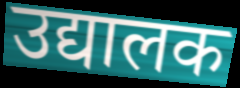
उद्यालक